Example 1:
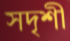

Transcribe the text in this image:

সদৃশী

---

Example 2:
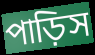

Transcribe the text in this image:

পাড়িস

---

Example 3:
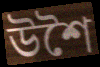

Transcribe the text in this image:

উশৈ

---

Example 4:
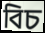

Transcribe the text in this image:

বিচ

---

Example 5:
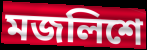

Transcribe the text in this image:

মজলিশে